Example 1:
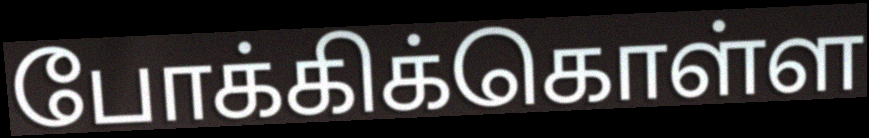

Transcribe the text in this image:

போக்கிக்கொள்ள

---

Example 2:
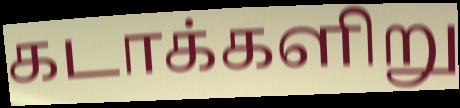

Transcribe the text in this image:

கடாக்களிறு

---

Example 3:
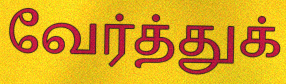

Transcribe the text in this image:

வேர்த்துக்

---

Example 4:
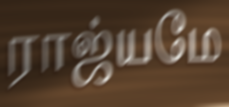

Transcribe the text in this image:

ராஜ்யமே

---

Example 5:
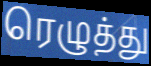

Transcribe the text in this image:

ரெழுத்து